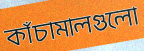
কাঁচামালগুলো